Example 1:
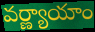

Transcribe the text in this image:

వర్ణ్యాయాం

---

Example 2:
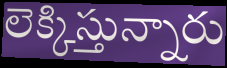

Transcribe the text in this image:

లెక్కిస్తున్నారు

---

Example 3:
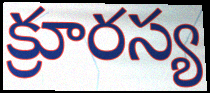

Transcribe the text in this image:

క్రూరస్య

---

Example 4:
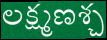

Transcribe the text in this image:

లక్ష్మణశ్చ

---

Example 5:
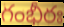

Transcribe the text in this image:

గంభీరః